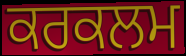
ਕਰਕਲਮ